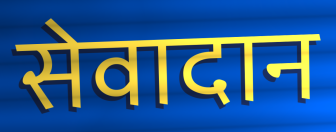
सेवादान